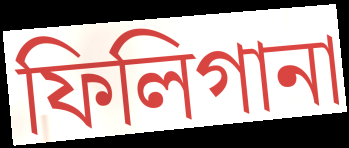
ফিলিগানা